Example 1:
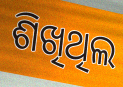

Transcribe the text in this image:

ଶିଖିଥିଲ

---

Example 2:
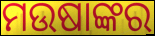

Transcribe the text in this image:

ମଉଷାଙ୍କର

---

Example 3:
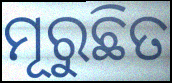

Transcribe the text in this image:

ମୂରୁଛିତ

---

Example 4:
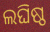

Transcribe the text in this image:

ଲଘିଷ୍ଠ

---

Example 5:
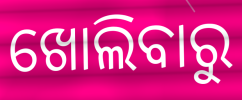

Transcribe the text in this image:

ଖୋଲିବାରୁ